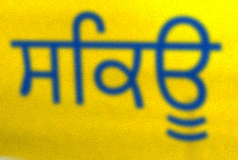
ਸਕਿਊ